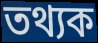
তথ্যক